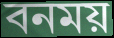
বনময়